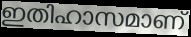
ഇതിഹാസമാണ്